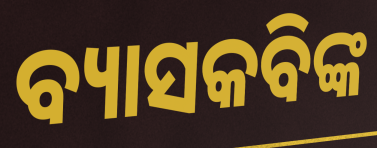
ବ୍ୟାସକବିଙ୍କ